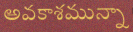
అవకాశమున్నా